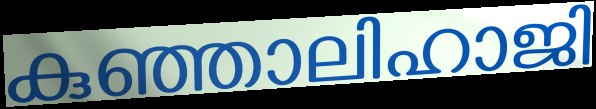
കുഞ്ഞാലിഹാജി